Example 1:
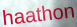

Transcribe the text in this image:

haathon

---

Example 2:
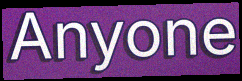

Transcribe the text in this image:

Anyone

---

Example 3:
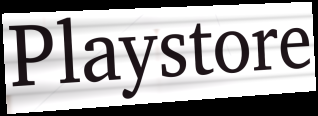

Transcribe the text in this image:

Playstore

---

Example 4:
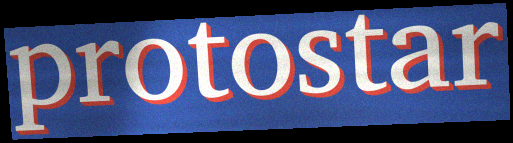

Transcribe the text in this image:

protostar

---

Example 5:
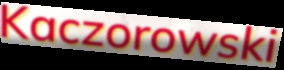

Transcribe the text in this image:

Kaczorowski